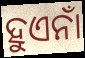
ହୁଏନାଁ